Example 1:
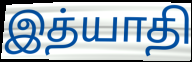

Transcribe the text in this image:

இத்யாதி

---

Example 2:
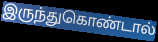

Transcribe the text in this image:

இருந்துகொண்டால்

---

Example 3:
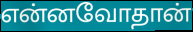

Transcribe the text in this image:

என்னவோதான்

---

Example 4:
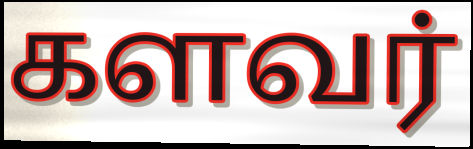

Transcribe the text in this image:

களவர்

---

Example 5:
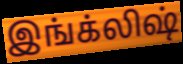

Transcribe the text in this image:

இங்க்லிஷ்